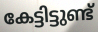
കേട്ടിട്ടുണ്ട്